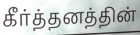
கீர்த்தனத்தின்